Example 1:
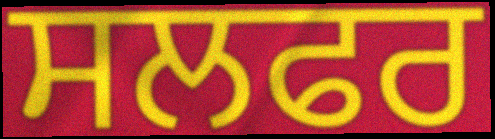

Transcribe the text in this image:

ਸਲਫਰ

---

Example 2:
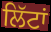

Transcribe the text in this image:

ਲਿੱਟਾਂ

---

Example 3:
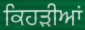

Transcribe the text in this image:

ਕਿਹੜੀਆਂ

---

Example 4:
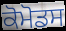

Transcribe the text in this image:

ਕੋਮੋਡਸ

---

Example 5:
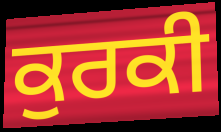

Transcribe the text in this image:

ਕੁਰਕੀ